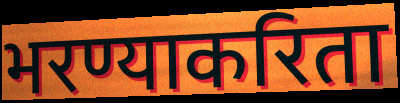
भरण्याकरिता